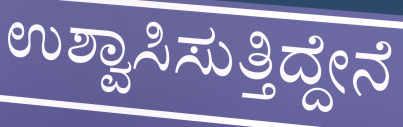
ಉಶ್ವಾಸಿಸುತ್ತಿದ್ದೇನೆ